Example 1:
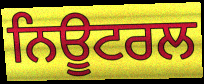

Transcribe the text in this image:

ਨਿਊਟਰਲ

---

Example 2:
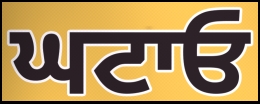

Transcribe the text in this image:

ਘਟਾਓ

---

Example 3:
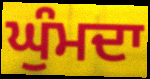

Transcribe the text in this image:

ਘੁੰਮਦਾ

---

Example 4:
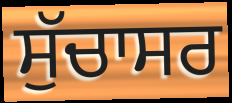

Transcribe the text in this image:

ਸੁੱਚਾਸਰ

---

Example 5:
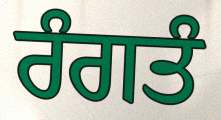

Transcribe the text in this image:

ਰੰਗਤੰ